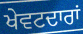
ਖੇਵਟਦਾਰਾਂ